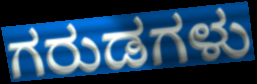
ಗರುಡಗಳು